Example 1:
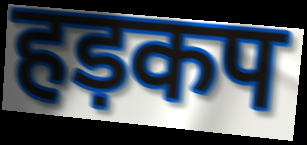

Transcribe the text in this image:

हड़कप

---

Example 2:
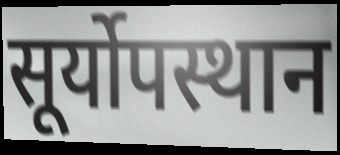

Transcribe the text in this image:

सूर्योपस्थान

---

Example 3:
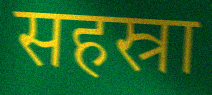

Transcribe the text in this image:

सहस्रा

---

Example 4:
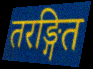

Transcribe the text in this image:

तरङ्गित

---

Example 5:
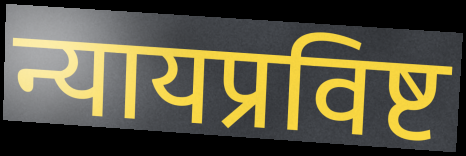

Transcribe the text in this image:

न्यायप्रविष्ट